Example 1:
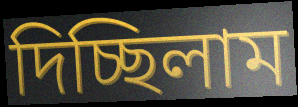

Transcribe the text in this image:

দিচ্ছিলাম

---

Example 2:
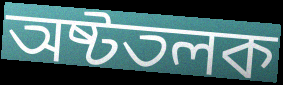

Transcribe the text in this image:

অষ্টতলক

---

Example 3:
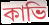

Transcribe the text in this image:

কাভি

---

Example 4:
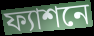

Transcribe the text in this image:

ফ্যাশনে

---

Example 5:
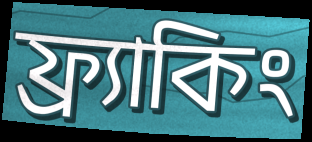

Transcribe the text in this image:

ফ্র্যাকিং